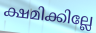
ക്ഷമിക്കില്ലേ